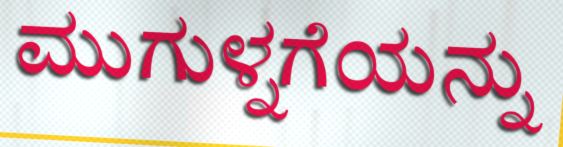
ಮುಗುಳ್ನಗೆಯನ್ನು